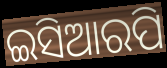
ଇସିଆରପି